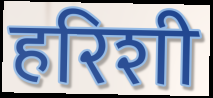
हरिशी